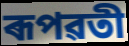
ৰূপৱতী